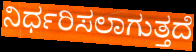
ನಿರ್ಧರಿಸಲಾಗುತ್ತದೆ